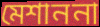
মেশাননা